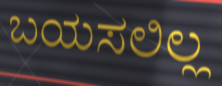
ಬಯಸಲಿಲ್ಲ